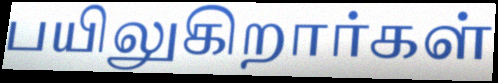
பயிலுகிறார்கள்